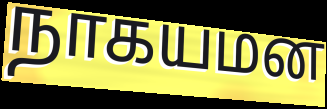
நாகயமன